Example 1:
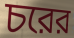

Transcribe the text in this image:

চরের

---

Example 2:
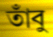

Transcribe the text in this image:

তাঁবু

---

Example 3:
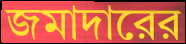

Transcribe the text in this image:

জমাদারের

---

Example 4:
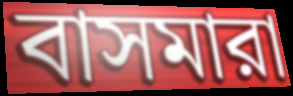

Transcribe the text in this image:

বাসমারা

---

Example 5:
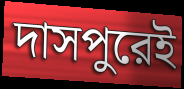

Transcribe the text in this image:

দাসপুরেই